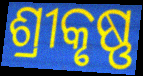
ଶ୍ରୀକୃଷ୍ଣ